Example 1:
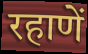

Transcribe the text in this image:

रहाणें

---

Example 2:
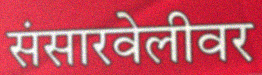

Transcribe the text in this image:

संसारवेलीवर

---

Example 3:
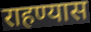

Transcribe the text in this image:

राहण्यास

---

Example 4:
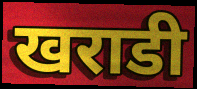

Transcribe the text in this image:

खराडी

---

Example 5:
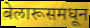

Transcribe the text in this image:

बेलारूसमधून